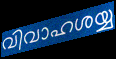
വിവാഹശയ്യ